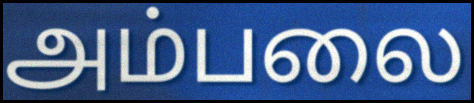
அம்பலை